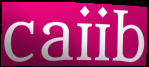
caiib